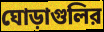
ঘোড়াগুলির